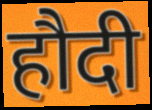
हौदी